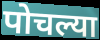
पोचल्या